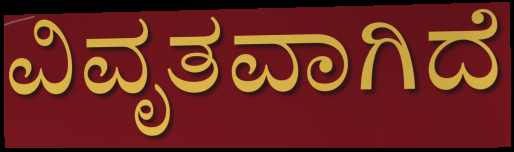
ವಿವೃತವಾಗಿದೆ